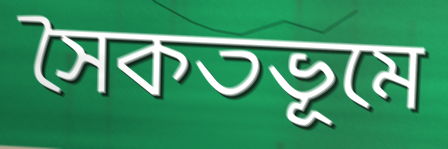
সৈকতভূমে